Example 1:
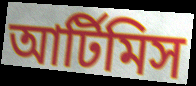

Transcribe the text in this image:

আর্টিমিস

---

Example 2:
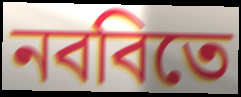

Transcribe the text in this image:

নববিতে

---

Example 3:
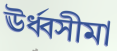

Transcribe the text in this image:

ঊর্ধ্বসীমা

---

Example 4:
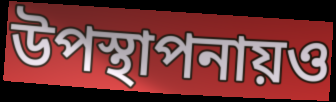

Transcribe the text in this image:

উপস্থাপনায়ও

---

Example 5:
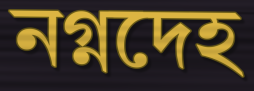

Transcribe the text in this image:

নগ্নদেহ